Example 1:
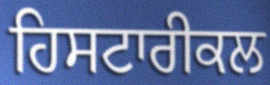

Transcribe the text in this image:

ਹਿਸਟਾਰੀਕਲ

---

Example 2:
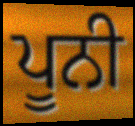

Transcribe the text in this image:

ਪੂਨੀ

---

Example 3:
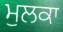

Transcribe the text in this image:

ਮੁਲਕਾ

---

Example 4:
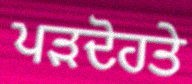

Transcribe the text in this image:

ਪੜਦੋਹਤੇ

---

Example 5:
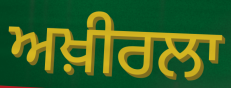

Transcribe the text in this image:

ਅਖ਼ੀਰਲਾ